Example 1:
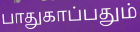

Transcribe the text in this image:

பாதுகாப்பதும்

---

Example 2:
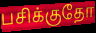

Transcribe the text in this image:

பசிக்குதோ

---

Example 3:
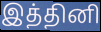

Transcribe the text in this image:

இத்தினி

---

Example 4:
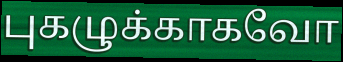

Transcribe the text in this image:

புகழுக்காகவோ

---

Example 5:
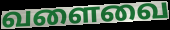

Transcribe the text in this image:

வளைவை